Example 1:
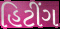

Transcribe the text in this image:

હિટીંગ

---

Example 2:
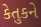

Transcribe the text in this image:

કેતુકને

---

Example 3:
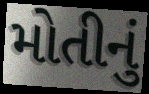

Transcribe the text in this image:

મોતીનું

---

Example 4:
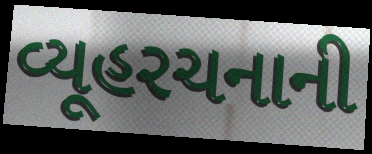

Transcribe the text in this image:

વ્યૂહરચનાની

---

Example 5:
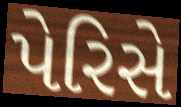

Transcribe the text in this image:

પેરિસે